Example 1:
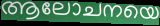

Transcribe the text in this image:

ആലോചനയെ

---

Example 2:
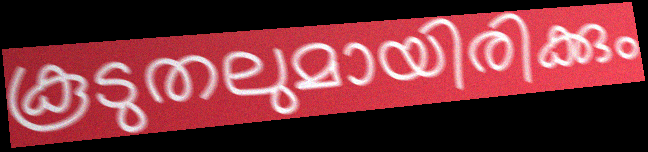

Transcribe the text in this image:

കൂടുതലുമായിരിക്കും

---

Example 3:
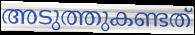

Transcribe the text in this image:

അടുത്തുകണ്ടത്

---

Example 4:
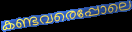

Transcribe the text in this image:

കണ്ടവരെപ്പോലെ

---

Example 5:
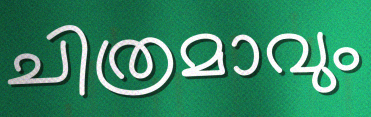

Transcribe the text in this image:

ചിത്രമാവും